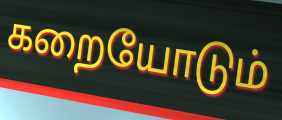
கறையோடும்